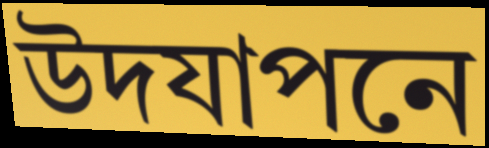
উদযাপনে